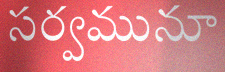
సర్వమునూ